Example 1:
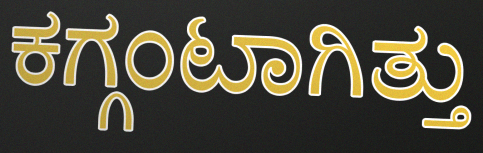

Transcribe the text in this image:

ಕಗ್ಗಂಟಾಗಿತ್ತು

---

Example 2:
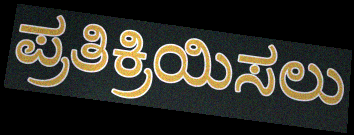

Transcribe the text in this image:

ಪ್ರತಿಕ್ರಿಯಿಸಲು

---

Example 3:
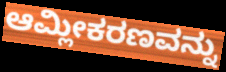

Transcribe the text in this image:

ಆಮ್ಲೀಕರಣವನ್ನು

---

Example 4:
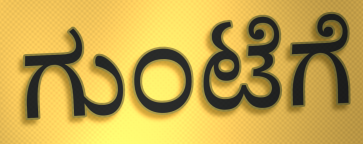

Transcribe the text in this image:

ಗುಂಟೆಗೆ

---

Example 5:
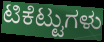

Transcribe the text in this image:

ಟಿಕೆಟ್ಟುಗಳು